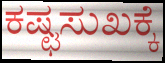
ಕಷ್ಟಸುಖಕ್ಕೆ